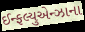
ઈન્ફલ્યુએન્ઝાના